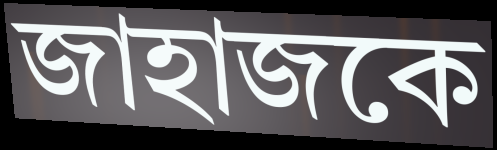
জাহাজকে